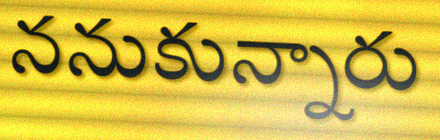
ననుకున్నారు